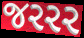
જરરર